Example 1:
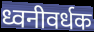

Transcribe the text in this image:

ध्वनीवर्धक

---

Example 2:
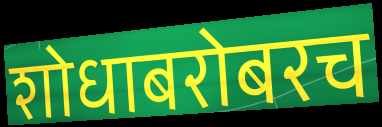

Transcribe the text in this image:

शोधाबरोबरच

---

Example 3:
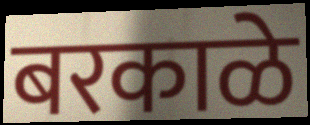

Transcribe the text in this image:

बरकाळे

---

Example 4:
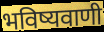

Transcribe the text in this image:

भविष्यवाणी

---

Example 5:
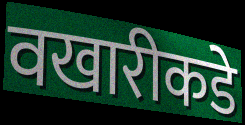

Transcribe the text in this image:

वखारीकडे